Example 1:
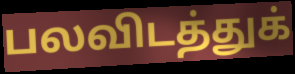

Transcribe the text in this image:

பலவிடத்துக்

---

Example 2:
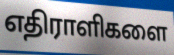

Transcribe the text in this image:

எதிராளிகளை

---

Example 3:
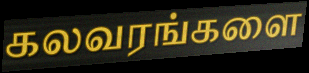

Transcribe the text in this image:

கலவரங்களை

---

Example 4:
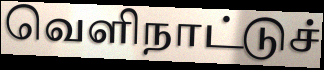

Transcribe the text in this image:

வெளிநாட்டுச்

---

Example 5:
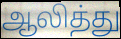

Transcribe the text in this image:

ஆலித்து